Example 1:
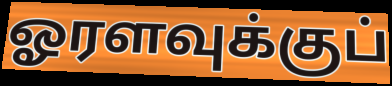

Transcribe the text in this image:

ஓரளவுக்குப்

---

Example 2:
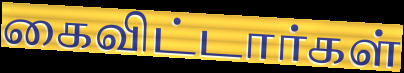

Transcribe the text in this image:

கைவிட்டார்கள்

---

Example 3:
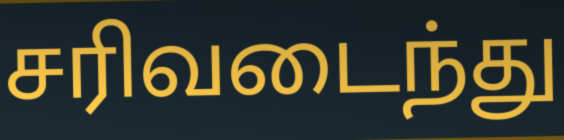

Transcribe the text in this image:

சரிவடைந்து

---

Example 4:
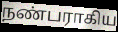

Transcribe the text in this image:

நண்பராகிய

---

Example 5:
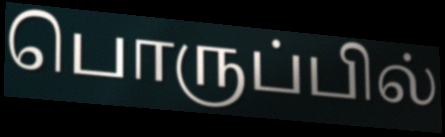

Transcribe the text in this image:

பொருப்பில்